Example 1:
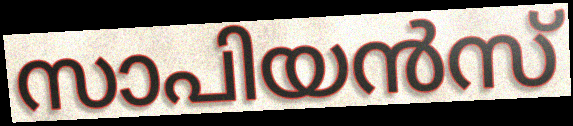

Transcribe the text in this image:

സാപിയൻസ്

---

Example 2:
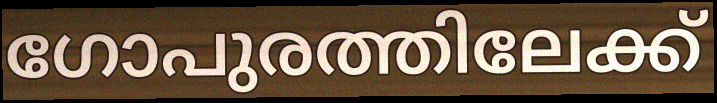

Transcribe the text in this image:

ഗോപുരത്തിലേക്ക്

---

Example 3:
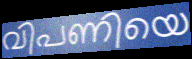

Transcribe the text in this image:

വിപണിയെ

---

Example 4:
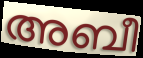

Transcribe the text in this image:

അബീ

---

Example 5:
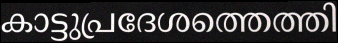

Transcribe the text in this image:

കാട്ടുപ്രദേശത്തെത്തി